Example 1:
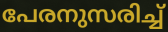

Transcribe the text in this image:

പേരനുസരിച്ച്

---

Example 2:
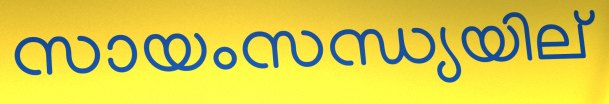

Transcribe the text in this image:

സായംസന്ധ്യയില്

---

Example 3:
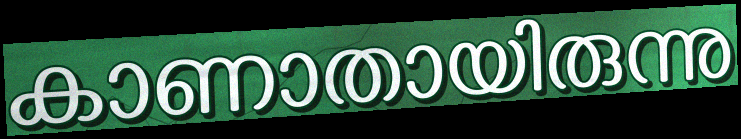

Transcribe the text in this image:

കാണാതായിരുന്നു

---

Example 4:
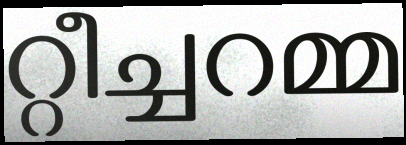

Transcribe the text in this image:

റ്റീച്ചറമ്മ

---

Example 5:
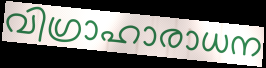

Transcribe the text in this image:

വിഗ്രാഹാരാധന